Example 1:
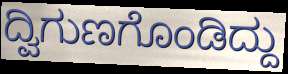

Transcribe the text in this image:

ದ್ವಿಗುಣಗೊಂಡಿದ್ದು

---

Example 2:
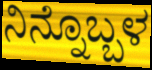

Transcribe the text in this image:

ನಿನ್ನೊಬ್ಬಳ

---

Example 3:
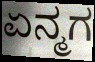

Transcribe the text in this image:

ಏನ್ಮಗ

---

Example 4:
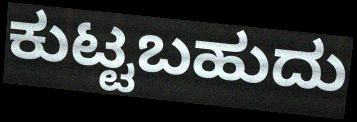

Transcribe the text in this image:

ಕುಟ್ಟಬಹುದು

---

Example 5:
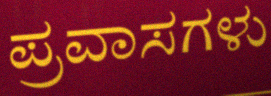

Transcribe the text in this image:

ಪ್ರವಾಸಗಳು